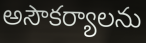
అసౌకర్యాలను